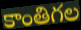
కాంతిగల